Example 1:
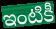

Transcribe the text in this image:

ఇంటికీ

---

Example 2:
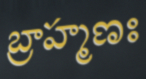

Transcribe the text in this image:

బ్రాహ్మణః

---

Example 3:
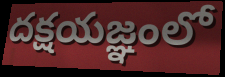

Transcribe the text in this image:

దక్షయజ్ఞంలో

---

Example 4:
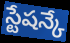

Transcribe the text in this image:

స్టేషన్కే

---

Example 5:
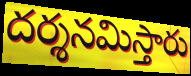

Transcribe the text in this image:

దర్శనమిస్తారు